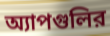
অ্যাপগুলির